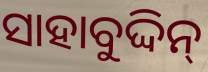
ସାହାବୁଦ୍ଦିନ୍